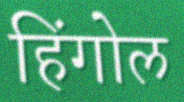
हिंगोल